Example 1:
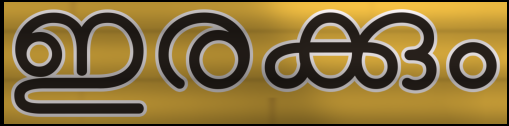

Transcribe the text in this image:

ഇരക്കും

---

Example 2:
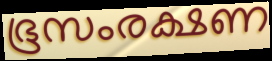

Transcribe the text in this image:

ഭൂസംരക്ഷണ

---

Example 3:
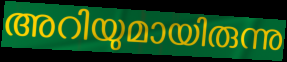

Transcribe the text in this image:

അറിയുമായിരുന്നു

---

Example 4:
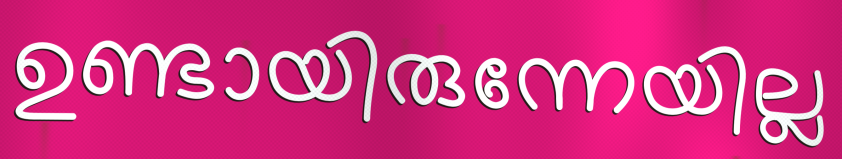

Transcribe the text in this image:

ഉണ്ടായിരുന്നേയില്ല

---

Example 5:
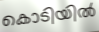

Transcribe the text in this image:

കൊടിയിൽ